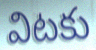
విటకు